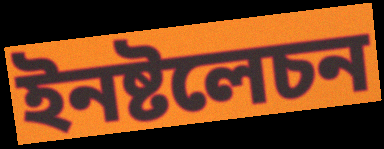
ইনষ্টলেচন